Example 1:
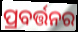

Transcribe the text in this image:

ପ୍ରବର୍ତ୍ତନର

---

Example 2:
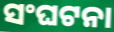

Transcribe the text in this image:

ସଂଘଟନା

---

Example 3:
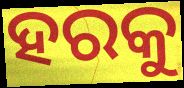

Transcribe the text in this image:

ହରକୁ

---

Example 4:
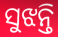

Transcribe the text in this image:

ସୁଝନ୍ତି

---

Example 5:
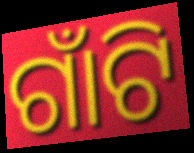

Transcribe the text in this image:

ଗାଁଟି